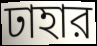
ঢাহার